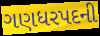
ગણધરપદની